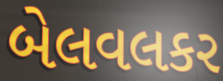
બેલવલકર